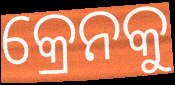
କ୍ରେନକୁ